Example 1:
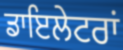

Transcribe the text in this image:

ਡਾਇਲੇਟਰਾਂ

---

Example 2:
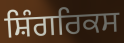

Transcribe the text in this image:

ਸ਼ਿੰਗਰਿਕਸ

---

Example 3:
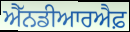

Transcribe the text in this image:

ਐੱਨਡੀਆਰਐਫ਼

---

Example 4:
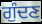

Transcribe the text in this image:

ਗੁੰਦਣ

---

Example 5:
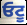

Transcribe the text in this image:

ਓਟੂ